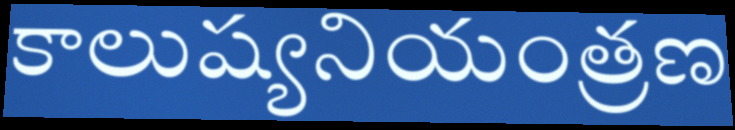
కాలుష్యనియంత్రణ